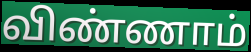
விண்ணாம்